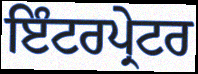
ਇੰਟਰਪ੍ਰੇਟਰ